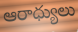
ఆరాధ్యులు